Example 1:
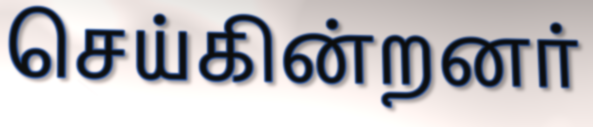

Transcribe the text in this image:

செய்கின்றனர்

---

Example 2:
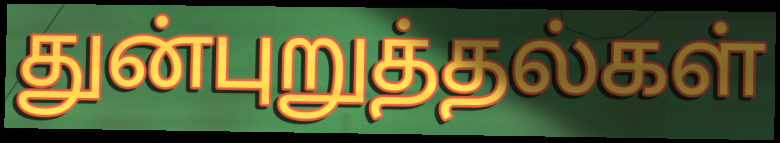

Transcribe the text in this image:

துன்புறுத்தல்கள்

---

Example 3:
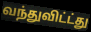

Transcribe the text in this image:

வந்துவிட்ட்து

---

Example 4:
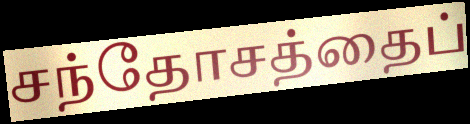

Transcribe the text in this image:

சந்தோசத்தைப்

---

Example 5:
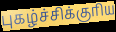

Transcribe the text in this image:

புகழ்ச்சிக்குரிய